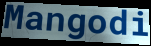
Mangodi